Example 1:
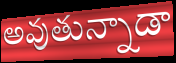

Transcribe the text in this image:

అవుతున్నాడా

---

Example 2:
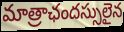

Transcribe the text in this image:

మాత్రాఛందస్సులైన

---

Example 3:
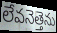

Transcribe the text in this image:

లేవనెత్తెను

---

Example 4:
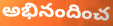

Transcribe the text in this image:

అభినందించ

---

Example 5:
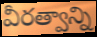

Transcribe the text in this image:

వీరత్వాన్ని